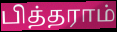
பித்தராம்